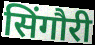
सिंगौरी